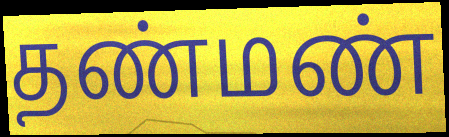
தண்மண்